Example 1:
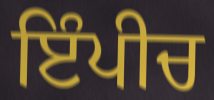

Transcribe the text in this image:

ਇੰਪੀਚ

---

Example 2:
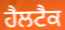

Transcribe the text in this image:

ਹੈਲਟੈਕ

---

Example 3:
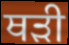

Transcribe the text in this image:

ਥੜੀ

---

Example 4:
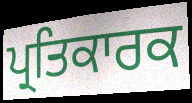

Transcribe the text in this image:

ਪ੍ਰਤਿਕਾਰਕ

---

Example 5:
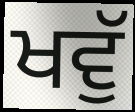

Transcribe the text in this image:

ਖਵੁੱ